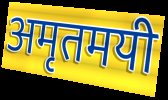
अमृतमयी